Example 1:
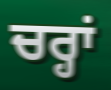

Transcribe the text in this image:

ਚਰ੍ਹਾਂ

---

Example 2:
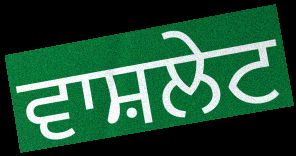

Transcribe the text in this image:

ਵਾਸ਼ਲੇਟ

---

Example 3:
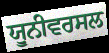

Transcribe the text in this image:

ਯੂਨੀਵਰਸਲ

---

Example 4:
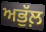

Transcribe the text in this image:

ਅਭੁੱਲ਼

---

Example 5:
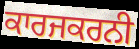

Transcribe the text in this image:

ਕਾਰਜਕਰਨੀ